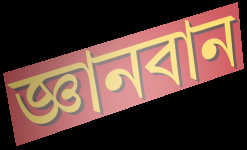
জ্ঞানবান